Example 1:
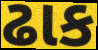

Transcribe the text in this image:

ઢાક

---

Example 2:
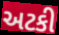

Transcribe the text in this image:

અટકી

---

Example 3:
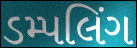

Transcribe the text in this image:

ડમ્પલિંગ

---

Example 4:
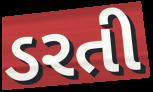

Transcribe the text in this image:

ડરતી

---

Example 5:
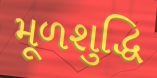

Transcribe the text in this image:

મૂળશુદ્ધિ